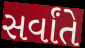
સર્વાંતે